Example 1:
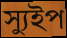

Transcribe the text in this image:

স্যুইপ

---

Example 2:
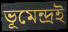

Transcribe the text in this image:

ভূমেন্দ্রই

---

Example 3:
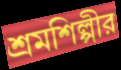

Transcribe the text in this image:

শ্রমশিল্পীর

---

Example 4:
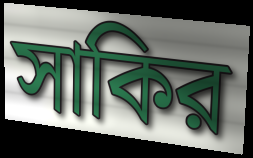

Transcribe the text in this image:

সাকির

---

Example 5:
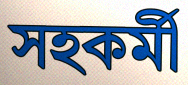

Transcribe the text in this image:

সহকর্মী